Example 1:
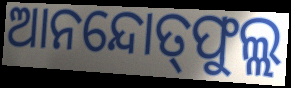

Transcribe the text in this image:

ଆନନ୍ଦୋତ୍‍ଫୁଲ୍ଲ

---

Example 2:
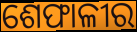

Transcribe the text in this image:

ଶେଫାଳୀର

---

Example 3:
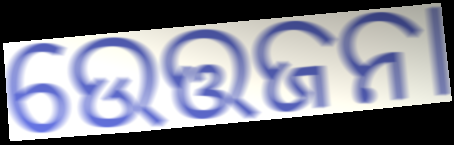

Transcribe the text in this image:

ଉେତ୍ତଜନା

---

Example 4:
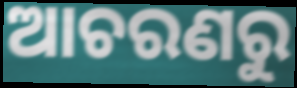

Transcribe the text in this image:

ଆଚରଣରୁ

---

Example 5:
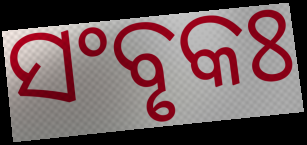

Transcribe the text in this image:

ସଂବୃକଃ